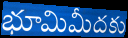
భూమిమీదకు